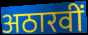
अठारवीं